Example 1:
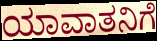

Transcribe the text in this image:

ಯಾವಾತನಿಗೆ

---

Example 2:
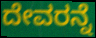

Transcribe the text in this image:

ದೇವರನ್ನೆ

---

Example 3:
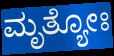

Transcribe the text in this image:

ಮೃತ್ಯೋಃ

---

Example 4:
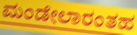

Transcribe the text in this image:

ಮಂಡೇಲಾರಂತಹ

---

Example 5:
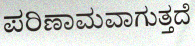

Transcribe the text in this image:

ಪರಿಣಾಮವಾಗುತ್ತದೆ